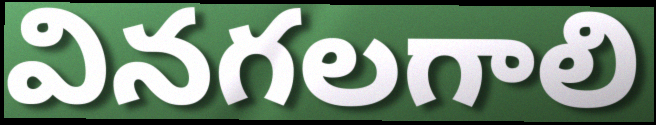
వినగలగాలి